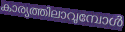
കാര്യത്തിലാവുമ്പോൾ